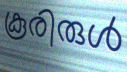
കൂരിരുൾ